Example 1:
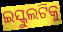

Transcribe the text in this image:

ଇସ୍କୁଲଟିକୁ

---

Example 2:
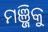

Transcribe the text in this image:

ମଞ୍ଜିକୁ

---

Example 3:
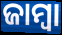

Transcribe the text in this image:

ଜାମ୍ବା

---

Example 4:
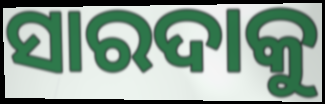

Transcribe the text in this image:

ସାରଦାକୁ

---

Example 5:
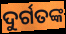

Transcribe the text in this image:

ଦୁର୍ଗତଙ୍କ